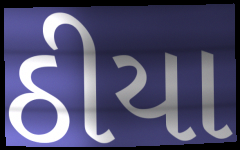
ઠીયા